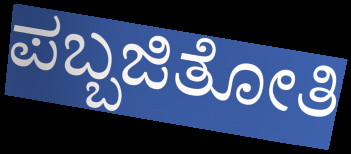
ಪಬ್ಬಜಿತೋತಿ